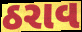
ઠરાવ